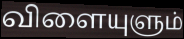
விளையுளும்